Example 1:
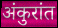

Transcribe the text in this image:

अंकुरांत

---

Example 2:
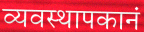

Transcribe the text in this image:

व्यवस्थापकानं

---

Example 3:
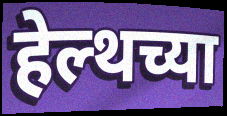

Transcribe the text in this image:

हेल्थच्या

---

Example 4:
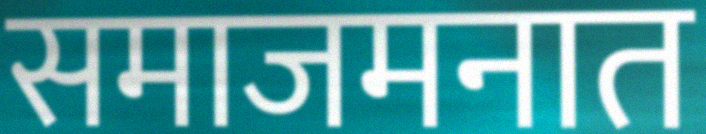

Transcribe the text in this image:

समाजमनात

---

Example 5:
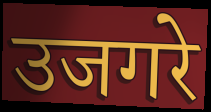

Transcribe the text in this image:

उजगरे